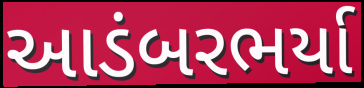
આડંબરભર્યા